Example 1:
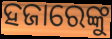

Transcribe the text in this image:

ହଜାରେଙ୍କୁ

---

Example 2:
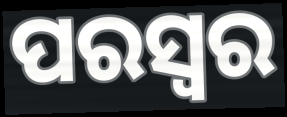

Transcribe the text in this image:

ପରସ୍ୱର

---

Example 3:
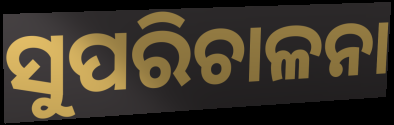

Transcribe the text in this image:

ସୁପରିଚାଳନା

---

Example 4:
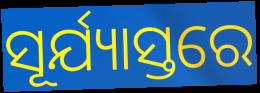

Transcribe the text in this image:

ସୂର୍ଯ୍ୟାସ୍ତରେ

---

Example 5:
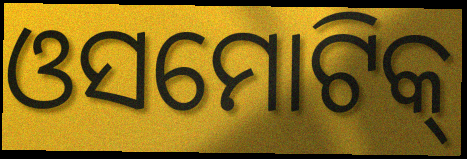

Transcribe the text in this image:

ଓସମୋଟିକ୍